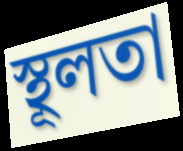
স্থূলতা